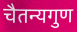
चैतन्यगुण